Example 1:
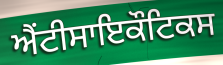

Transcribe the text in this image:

ਐਂਟੀਸਾਇਕੌਟਿਕਸ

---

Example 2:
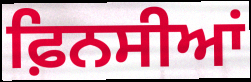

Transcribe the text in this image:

ਫ਼ਿਨਸੀਆਂ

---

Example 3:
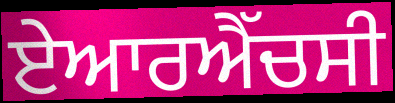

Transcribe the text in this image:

ਏਆਰਐੱਚਸੀ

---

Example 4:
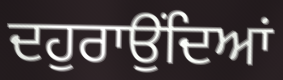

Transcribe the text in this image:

ਦਹੁਰਾਉਂਦਿਆਂ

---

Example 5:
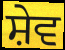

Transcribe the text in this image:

ਸ਼ੇਵ